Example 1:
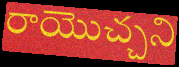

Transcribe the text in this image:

రాయొచ్చని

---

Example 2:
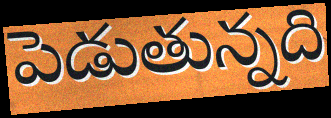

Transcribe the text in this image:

పెడుతున్నది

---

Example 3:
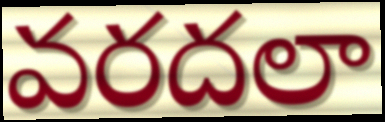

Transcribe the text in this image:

వరదలా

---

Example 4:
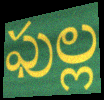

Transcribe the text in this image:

ఫుల్ల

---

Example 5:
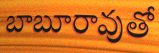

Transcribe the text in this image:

బాబూరావుతో